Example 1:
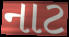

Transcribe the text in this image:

નાટ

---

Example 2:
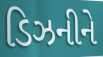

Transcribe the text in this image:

ડિઝનીને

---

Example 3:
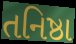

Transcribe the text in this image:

તનિષ્ઠા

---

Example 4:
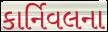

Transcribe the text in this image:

કાર્નિવલના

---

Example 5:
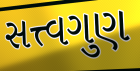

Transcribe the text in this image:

સત્ત્વગુણ